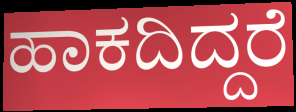
ಹಾಕದಿದ್ದರೆ